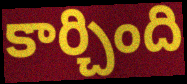
కార్చింది